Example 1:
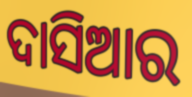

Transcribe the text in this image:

ଦାସିଆର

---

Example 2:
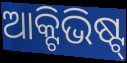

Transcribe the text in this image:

ଆକ୍ଟିଭିଷ୍ଟ୍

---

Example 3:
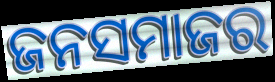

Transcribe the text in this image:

ଜନସମାଜର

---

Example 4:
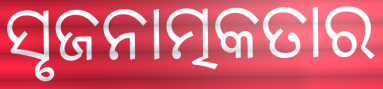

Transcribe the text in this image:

ସୃଜନାତ୍ମକତାର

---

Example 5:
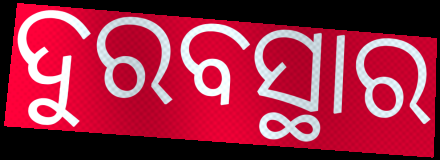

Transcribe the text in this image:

ଦୁରବସ୍ଥାର